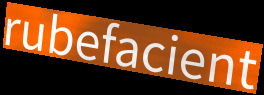
rubefacient